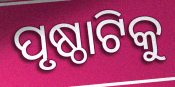
ପୃଷ୍ଠାଟିକୁ